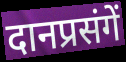
दानप्रसंगें